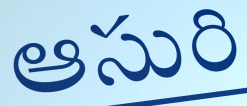
ఆసురి